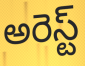
అరెస్ట్